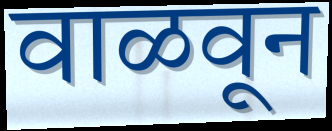
वाळवून